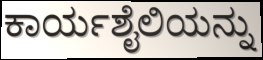
ಕಾರ್ಯಶೈಲಿಯನ್ನು